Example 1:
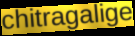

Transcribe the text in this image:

chitragalige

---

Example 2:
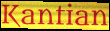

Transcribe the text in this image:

Kantian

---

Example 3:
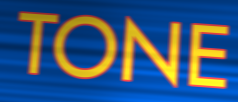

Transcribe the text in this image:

TONE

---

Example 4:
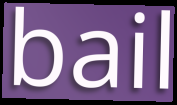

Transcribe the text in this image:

bail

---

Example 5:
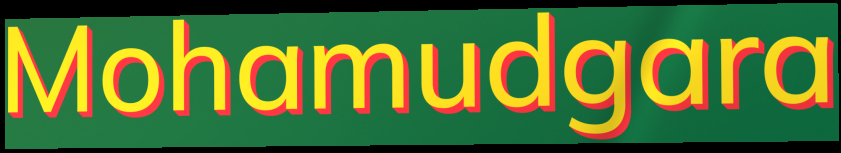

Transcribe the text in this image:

Mohamudgara